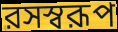
রসস্বরূপ